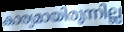
കാര്യമായിരുന്നില്ല